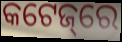
କଟେଜ୍‌ରେ